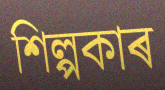
শিল্পকাৰ